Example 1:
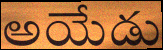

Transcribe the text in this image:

అయేడు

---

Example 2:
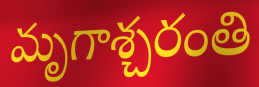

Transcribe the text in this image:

మృగాశ్చరంతి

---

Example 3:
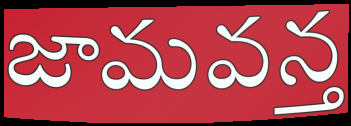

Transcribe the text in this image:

జామవన్త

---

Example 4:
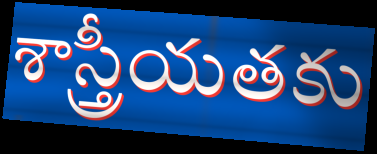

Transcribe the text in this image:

శాస్త్రీయతకు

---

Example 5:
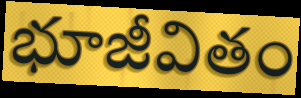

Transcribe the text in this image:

భూజీవితం